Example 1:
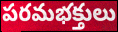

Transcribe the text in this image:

పరమభక్తులు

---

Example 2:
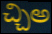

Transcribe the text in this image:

చ్చిఅ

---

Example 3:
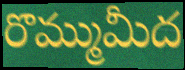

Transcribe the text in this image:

రొమ్ముమీద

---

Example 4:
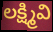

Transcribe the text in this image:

లక్ష్మివి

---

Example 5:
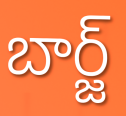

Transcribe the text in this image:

బార్జ్